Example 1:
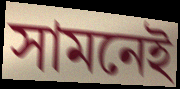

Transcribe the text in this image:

সামনেই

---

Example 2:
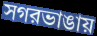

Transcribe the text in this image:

সগরভাঙায়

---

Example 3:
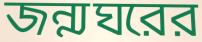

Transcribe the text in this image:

জন্মঘরের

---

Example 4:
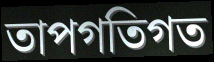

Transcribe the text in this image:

তাপগতিগত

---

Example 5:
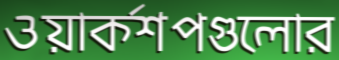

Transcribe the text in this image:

ওয়ার্কশপগুলোর